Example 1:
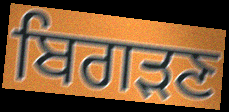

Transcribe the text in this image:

ਬਿਗੜਣ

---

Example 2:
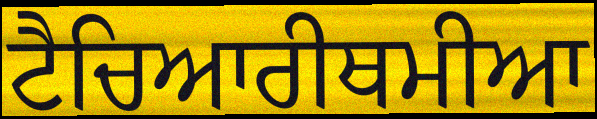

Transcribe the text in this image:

ਟੈਚਿਆਰੀਥਮੀਆ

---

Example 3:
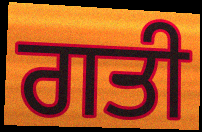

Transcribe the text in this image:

ਗਤੀ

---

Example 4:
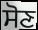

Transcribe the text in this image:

ਸੋਣ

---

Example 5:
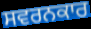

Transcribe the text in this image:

ਸਵਰਨਕਾਰ